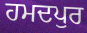
ਹਮਦਪੁਰ